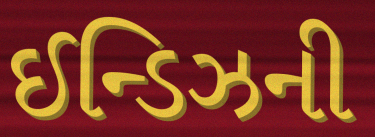
ઈન્ડિઝની